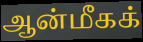
ஆன்மீகக்